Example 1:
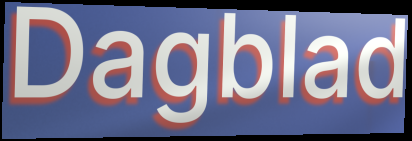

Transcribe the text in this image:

Dagblad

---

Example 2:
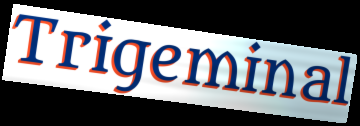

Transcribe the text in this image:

Trigeminal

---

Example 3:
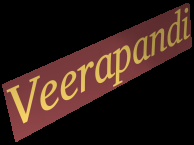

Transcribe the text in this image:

Veerapandi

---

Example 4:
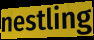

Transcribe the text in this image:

nestling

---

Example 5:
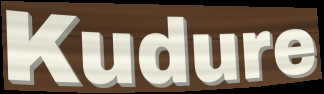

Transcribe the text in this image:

Kudure